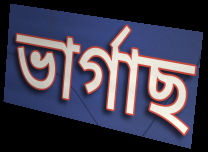
ভাৰ্গাছ